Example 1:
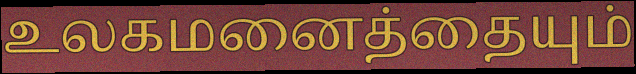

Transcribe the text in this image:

உலகமனைத்தையும்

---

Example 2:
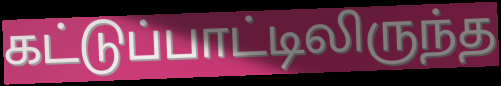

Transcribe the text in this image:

கட்டுப்பாட்டிலிருந்த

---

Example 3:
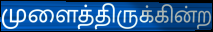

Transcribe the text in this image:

முளைத்திருக்கின்ற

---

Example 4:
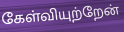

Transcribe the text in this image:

கேள்வியுற்றேன்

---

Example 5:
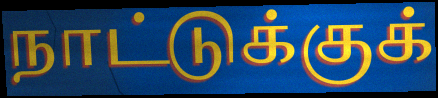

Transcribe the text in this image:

நாட்டுக்குக்